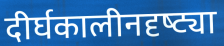
दीर्घकालीनदृष्ट्या